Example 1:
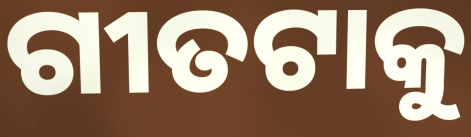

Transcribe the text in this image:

ଗୀତଟାକୁ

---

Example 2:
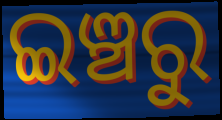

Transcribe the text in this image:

ଇଞ୍ଚରୁ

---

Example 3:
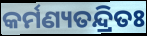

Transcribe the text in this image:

କର୍ମଣ୍ୟତନ୍ଦ୍ରିତଃ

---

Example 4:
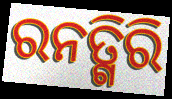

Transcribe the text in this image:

ରନତ୍ଗିରି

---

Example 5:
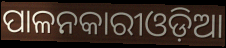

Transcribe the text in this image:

ପାଳନକାରୀଓଡ଼ିଆ